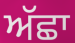
ਅੱਛਾ